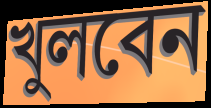
খুলবেন